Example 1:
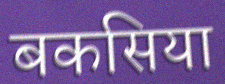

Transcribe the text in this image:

बकसिया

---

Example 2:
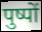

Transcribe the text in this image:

पुष्पों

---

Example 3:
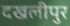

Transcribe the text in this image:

दखलीपुर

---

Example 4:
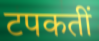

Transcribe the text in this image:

टपकतीं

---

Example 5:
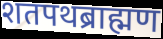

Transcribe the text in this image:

शतपथब्राह्मण